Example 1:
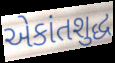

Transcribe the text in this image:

એકાંતશુદ્ધ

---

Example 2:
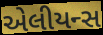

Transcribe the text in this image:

એલીયન્સ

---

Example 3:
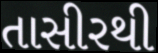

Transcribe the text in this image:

તાસીરથી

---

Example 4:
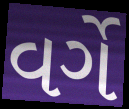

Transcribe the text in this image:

વર્ગે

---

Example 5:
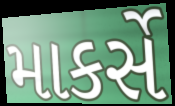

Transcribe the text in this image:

માકર્સે